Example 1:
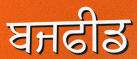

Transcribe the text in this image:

ਬਜਫੀਡ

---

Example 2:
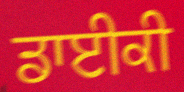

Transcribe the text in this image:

ਡਾਈਕੀ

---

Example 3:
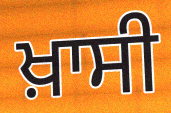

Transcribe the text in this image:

ਖ਼ਾਸੀ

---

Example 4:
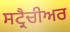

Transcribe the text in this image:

ਸਟ੍ਰੈਚੀਅਰ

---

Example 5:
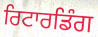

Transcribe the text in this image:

ਰਿਟਾਰਡਿੰਗ